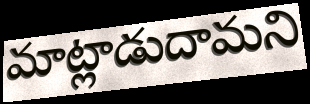
మాట్లాడుదామని